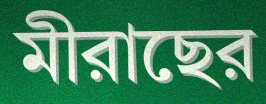
মীরাছের